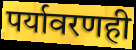
पर्यावरणही